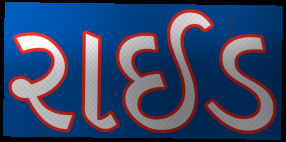
રાઈડ